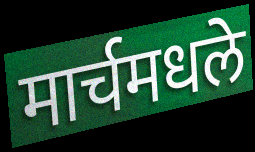
मार्चमधले